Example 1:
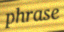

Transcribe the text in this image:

phrase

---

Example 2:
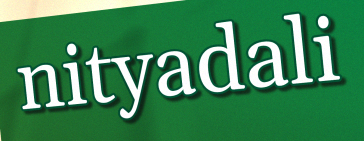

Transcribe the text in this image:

nityadali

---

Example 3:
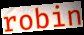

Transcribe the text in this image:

robin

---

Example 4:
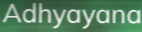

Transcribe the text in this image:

Adhyayana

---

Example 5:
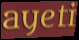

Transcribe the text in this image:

ayeti